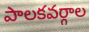
పాలకవర్గాల